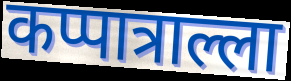
कप्पात्राल्ला